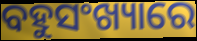
ବହୁସଂଖ୍ୟାରେ